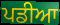
ਪਡੀਆ